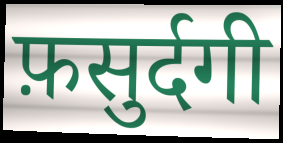
फ़सुर्दगी